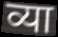
व्या